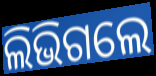
ଲିଭିଗଲେ